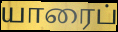
யாரைப்